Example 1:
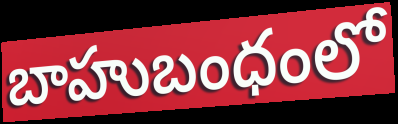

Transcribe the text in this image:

బాహుబంధంలో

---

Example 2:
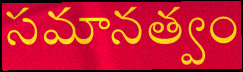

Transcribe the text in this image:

సమానత్వం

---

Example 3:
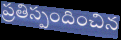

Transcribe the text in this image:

ప్రతిస్పందించిన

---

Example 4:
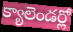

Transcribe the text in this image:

క్యాలెండర్లో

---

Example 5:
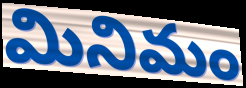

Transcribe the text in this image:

మినిమం